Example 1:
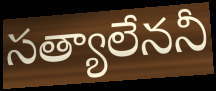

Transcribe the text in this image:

సత్యాలేననీ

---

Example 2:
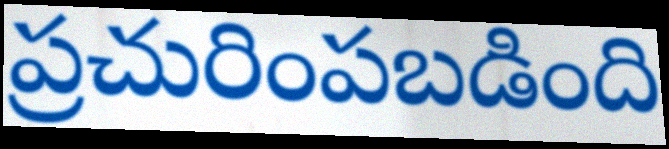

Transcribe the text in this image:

ప్రచురింపబడింది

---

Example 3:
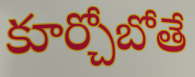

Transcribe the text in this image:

కూర్చోబోతే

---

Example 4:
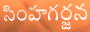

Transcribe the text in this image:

సింహగర్జన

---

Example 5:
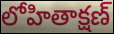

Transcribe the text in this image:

లోహితాక్షణ్